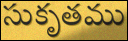
సుకృతము